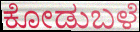
ಕೋಡುಬಳೆ